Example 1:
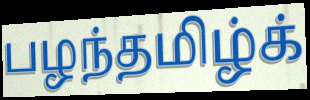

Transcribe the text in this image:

பழந்தமிழ்க்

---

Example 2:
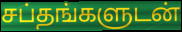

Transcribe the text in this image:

சப்தங்களுடன்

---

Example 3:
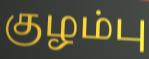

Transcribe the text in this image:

குழம்பு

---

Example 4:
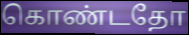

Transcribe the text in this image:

கொண்டதோ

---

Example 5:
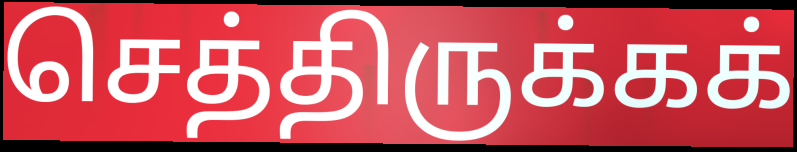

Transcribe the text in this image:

செத்திருக்கக்